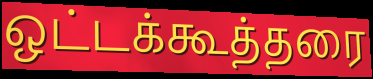
ஒட்டக்கூத்தரை